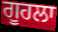
ਗੂਹਲਾ